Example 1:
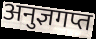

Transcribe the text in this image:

अनुज्ञगप्त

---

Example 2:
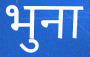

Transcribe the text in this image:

भुना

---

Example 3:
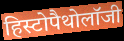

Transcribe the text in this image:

हिस्टोपैथोलॉजी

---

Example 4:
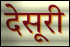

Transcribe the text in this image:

देसूरी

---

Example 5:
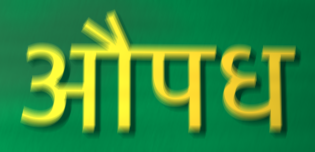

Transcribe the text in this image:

औपध